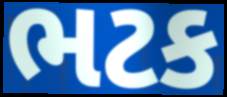
ભટક